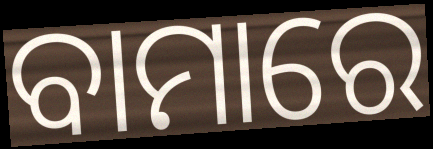
ବାମାରେ